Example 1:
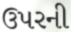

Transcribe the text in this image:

ઉપરની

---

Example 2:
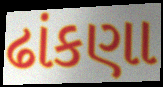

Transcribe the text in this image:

ઢાંકણા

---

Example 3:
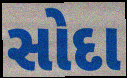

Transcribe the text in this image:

સોદા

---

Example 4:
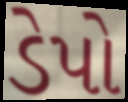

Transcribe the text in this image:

ડેપો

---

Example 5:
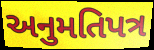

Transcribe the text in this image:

અનુમતિપત્ર